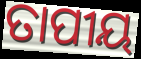
ତାପୀୟ